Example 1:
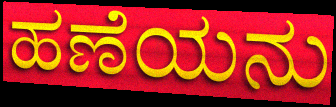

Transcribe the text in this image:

ಹಣೆಯನು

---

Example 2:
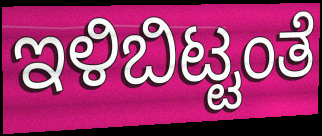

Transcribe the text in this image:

ಇಳಿಬಿಟ್ಟಂತೆ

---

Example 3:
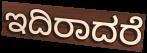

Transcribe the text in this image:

ಇದಿರಾದರೆ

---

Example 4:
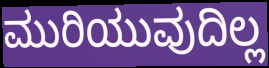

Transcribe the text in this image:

ಮುರಿಯುವುದಿಲ್ಲ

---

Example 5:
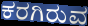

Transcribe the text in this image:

ಕರಗಿರುವ